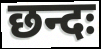
छन्दः